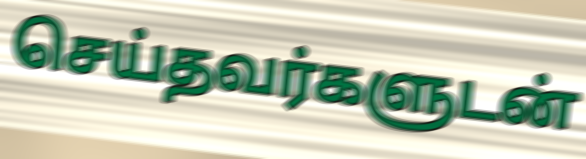
செய்தவர்களுடன்